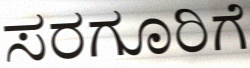
ಸರಗೂರಿಗೆ